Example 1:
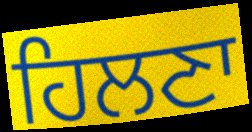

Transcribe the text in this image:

ਹਿਲਣਾ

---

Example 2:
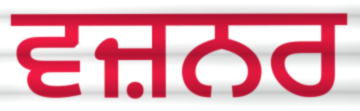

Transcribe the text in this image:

ਵਜ਼ਨਰ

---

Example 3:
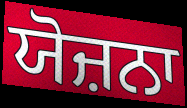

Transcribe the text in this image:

ਯੋਜ਼ਨਾ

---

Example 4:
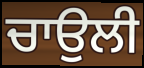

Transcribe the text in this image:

ਚਾਉਲੀ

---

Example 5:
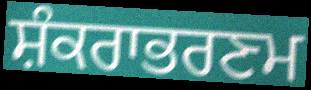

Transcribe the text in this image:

ਸ਼ੰਕਰਾਭਰਣਮ